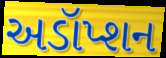
અડૉપ્શન